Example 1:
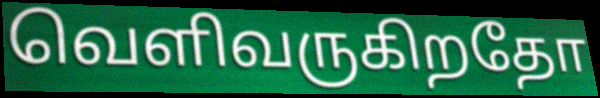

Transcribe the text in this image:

வெளிவருகிறதோ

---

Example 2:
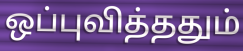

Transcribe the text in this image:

ஒப்புவித்ததும்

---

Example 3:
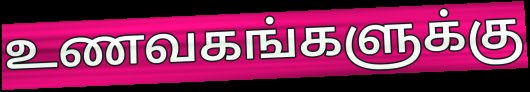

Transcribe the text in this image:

உணவகங்களுக்கு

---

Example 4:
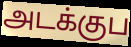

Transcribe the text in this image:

அடக்குப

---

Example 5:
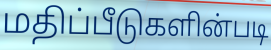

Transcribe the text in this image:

மதிப்பீடுகளின்படி